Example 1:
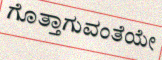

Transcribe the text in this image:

ಗೊತ್ತಾಗುವಂತೆಯೇ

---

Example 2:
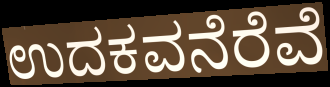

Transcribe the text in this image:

ಉದಕವನೆರೆವೆ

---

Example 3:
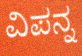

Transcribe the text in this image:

ವಿಪನ್ನ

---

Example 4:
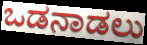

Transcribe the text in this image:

ಒಡನಾಡಲು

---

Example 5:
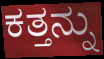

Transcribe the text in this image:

ಕತ್ತನ್ನು